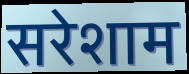
सरेशाम